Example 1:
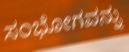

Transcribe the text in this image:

ಸಂಭೋಗವನ್ನು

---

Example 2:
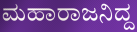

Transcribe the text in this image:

ಮಹಾರಾಜನಿದ್ದ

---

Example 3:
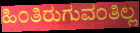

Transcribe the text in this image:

ಹಿಂತಿರುಗುವಂತಿಲ್ಲ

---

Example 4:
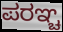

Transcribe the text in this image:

ಪರಞ್ಚ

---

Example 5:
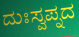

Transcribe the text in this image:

ದುಃಸ್ವಪ್ನದ